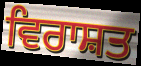
ਵਿਰਾਸ਼ਤ